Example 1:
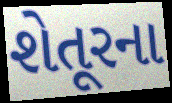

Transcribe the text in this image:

શેતૂરના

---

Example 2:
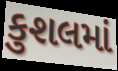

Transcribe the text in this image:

કુશલમાં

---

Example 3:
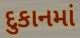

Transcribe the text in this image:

દુકાનમાં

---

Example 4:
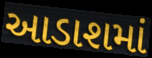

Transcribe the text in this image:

આડાશમાં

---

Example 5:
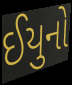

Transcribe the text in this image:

ઈયુનો